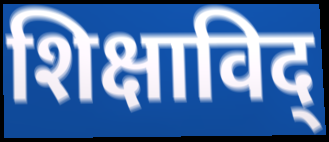
शिक्षाविद्